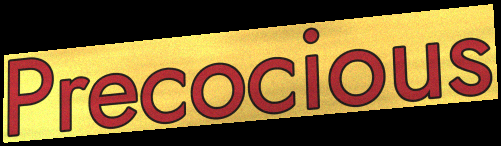
Precocious